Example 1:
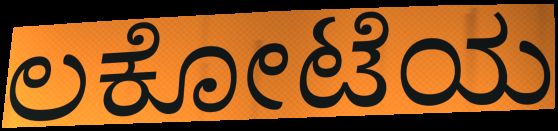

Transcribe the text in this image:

ಲಕೋಟೆಯ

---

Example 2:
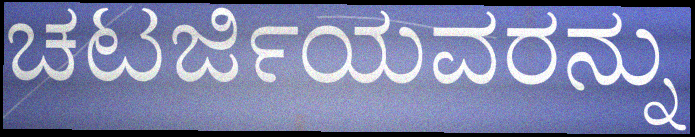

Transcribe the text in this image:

ಚಟರ್ಜಿಯವರನ್ನು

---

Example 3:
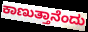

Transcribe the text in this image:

ಕಾಣುತ್ತಾನೆಂದು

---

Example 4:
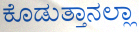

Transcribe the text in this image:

ಕೊಡುತ್ತಾನಲ್ಲಾ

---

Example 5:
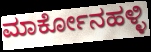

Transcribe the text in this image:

ಮಾರ್ಕೋನಹಳ್ಳಿ